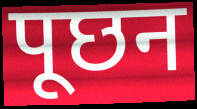
पूछन